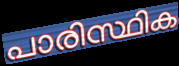
പാരിസ്ഥിക